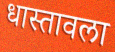
धास्तावला